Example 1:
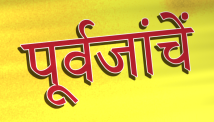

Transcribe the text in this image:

पूर्वजांचें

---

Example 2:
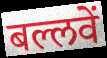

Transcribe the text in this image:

बल्लवें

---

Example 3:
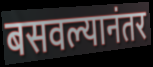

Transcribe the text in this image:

बसवल्यानंतर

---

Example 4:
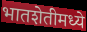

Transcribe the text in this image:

भातशेतीमध्ये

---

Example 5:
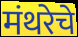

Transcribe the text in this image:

मंथरेचे